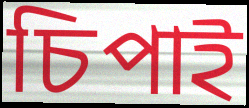
চিপাই